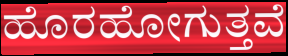
ಹೊರಹೋಗುತ್ತವೆ